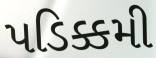
પડિક્કમી